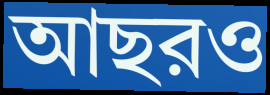
আছরও